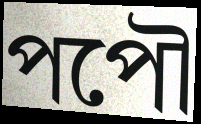
পপৌ